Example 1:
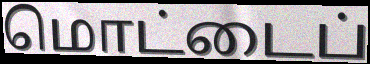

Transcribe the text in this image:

மொட்டைப்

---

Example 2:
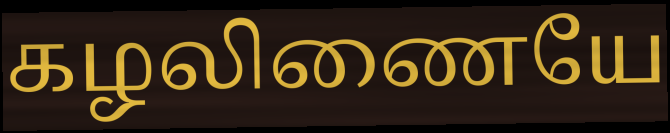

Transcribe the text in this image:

கழலிணையே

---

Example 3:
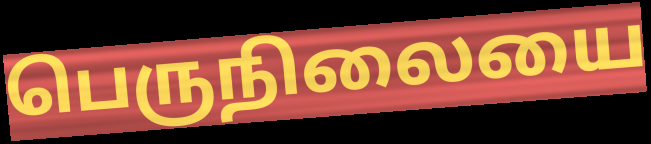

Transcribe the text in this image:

பெருநிலையை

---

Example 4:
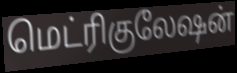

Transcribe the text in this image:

மெட்ரிகுலேஷன்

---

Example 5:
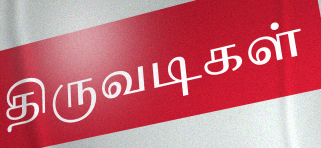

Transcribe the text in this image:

திருவடிகள்